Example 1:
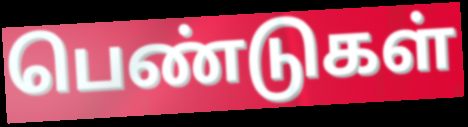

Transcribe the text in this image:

பெண்டுகள்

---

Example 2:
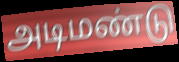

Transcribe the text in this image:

அடிமண்டு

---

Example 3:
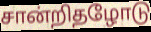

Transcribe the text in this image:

சான்றிதழோடு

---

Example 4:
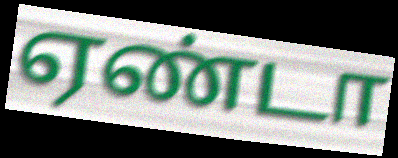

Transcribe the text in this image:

ஏண்டா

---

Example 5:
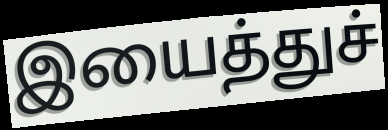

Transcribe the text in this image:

இயைத்துச்